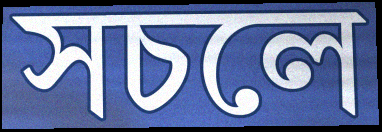
সচলে